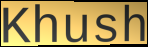
Khush